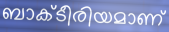
ബാക്ടീരിയമാണ്